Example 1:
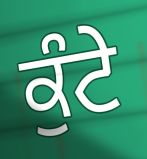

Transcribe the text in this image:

ਕੁੰਟੇ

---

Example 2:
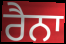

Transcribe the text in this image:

ਰੈਨਾ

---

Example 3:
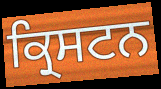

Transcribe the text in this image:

ਕ੍ਰਿਸਟਨ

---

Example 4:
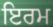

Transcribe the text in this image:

ਇਰਮ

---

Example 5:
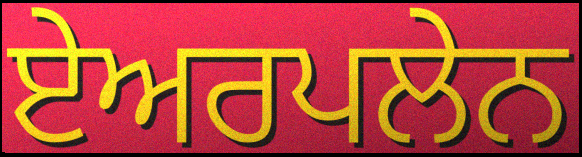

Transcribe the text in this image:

ਏਅਰਪਲੇਨ